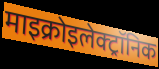
माइक्रोइलेक्ट्रॉनिक